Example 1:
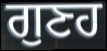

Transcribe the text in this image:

ਗੁਣਹ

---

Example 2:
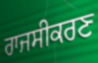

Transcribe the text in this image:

ਰਾਜਸੀਕਰਣ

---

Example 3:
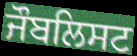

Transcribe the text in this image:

ਜੌਬਲਿਸਟ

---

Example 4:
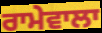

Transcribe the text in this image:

ਰਾਮੇਵਾਲਾ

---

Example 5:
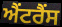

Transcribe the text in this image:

ਐਂਟਰੈਂਸ